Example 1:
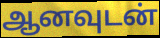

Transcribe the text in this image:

ஆனவுடன்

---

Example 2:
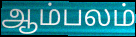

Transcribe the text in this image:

ஆம்பலம்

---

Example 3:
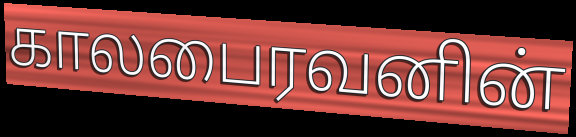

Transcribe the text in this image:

காலபைரவனின்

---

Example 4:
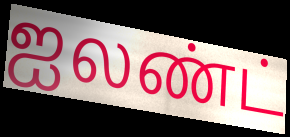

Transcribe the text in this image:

ஐலண்ட்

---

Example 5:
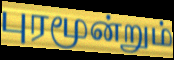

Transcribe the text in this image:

புரமூன்றும்